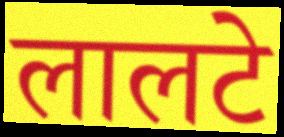
लालटे